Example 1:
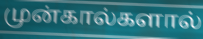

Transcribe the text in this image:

முன்கால்களால்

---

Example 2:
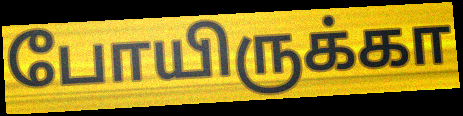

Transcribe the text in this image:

போயிருக்கா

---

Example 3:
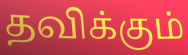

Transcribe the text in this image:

தவிக்கும்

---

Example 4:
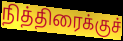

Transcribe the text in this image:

நித்திரைக்குச்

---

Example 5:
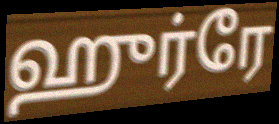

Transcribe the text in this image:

ஹுர்ரே